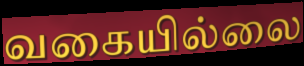
வகையில்லை